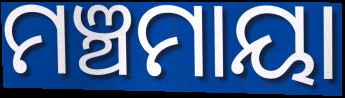
ମଞ୍ଚମାୟା